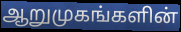
ஆறுமுகங்களின்